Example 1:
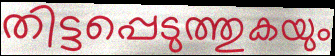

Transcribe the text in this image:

തിട്ടപ്പെടുത്തുകയും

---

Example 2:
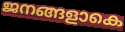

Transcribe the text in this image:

ജനങ്ങളാകെ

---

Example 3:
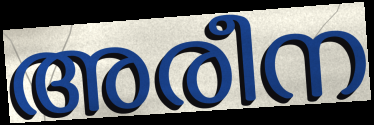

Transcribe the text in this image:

അരീന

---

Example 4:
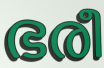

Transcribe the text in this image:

ഭരീ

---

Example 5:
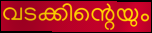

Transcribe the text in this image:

വടക്കിന്റെയും